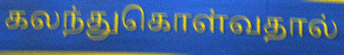
கலந்துகொள்வதால்